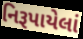
નિરૂપાયેલાં